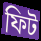
ফিট